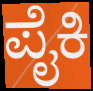
ಪೈಕಿ